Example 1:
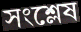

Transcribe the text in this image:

সংশ্লেষ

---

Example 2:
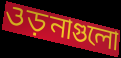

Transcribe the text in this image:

ওড়নাগুলো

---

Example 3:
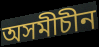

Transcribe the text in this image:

অসমীচীন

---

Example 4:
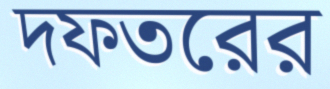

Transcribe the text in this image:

দফতরের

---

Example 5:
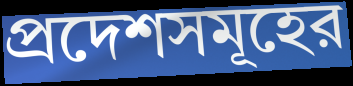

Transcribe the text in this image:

প্রদেশসমূহের